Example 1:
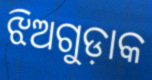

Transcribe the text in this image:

ଝିଅଗୁଡ଼ାକ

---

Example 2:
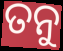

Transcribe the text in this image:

ତନୁ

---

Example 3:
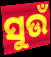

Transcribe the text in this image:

ସୁଉଁ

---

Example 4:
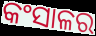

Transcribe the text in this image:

କଂସାଳର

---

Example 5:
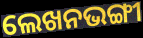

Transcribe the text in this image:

ଲେଖନଭଙ୍ଗୀ